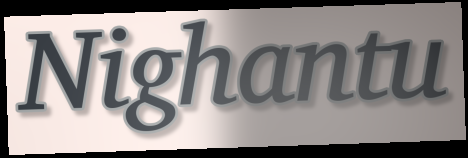
Nighantu